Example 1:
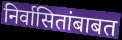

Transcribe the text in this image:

निर्वासितांबाबत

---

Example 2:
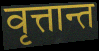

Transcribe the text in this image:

वृत्तान्त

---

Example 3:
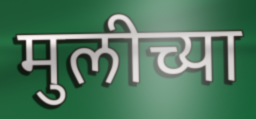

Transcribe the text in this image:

मुलीच्या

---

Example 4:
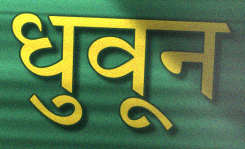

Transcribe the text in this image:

धुवून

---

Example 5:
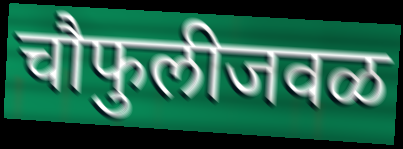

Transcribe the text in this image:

चौफुलीजवळ